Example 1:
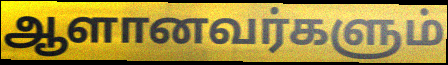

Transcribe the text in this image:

ஆளானவர்களும்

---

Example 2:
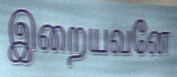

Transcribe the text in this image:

இறையவனே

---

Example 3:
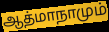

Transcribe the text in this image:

ஆத்மாநாமும்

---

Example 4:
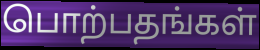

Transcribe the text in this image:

பொற்பதங்கள்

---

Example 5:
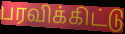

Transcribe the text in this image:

பரவிக்கிட்டு